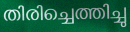
തിരിച്ചെത്തിച്ചു